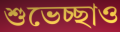
শুভেচ্ছাও